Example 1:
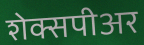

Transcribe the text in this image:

शेक्सपीअर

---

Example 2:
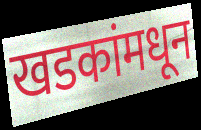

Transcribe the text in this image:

खडकांमधून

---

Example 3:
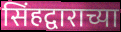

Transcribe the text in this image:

सिंहद्वाराच्या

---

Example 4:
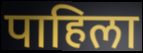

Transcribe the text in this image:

पाहिला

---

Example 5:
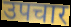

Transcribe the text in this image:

उपचार